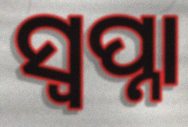
ସ୍ଵପ୍ନା